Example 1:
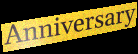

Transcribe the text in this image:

Anniversary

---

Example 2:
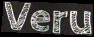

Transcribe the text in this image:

Veru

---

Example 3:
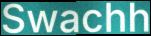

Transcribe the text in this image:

Swachh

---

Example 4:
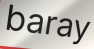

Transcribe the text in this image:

baray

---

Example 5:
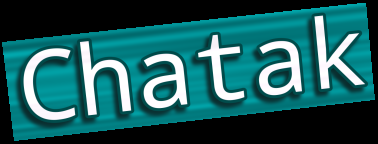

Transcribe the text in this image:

Chatak